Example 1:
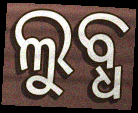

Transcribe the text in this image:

ଲୁବ୍ଧ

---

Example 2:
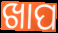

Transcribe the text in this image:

ଖାପ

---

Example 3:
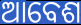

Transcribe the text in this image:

ଆବେଶ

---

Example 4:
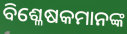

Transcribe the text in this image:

ବିଶ୍ଳେଷକମାନଙ୍କ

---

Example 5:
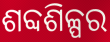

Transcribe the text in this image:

ଶବ୍ଦଶିଳ୍ପର